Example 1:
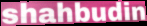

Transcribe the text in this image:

shahbudin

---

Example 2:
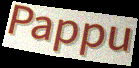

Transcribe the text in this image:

Pappu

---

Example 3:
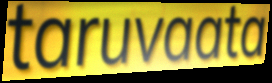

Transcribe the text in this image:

taruvaata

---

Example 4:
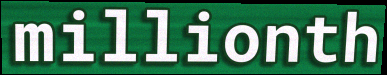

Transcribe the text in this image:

millionth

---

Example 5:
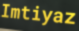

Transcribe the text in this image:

Imtiyaz